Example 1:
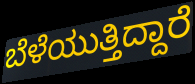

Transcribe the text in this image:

ಬೆಳೆಯುತ್ತಿದ್ದಾರೆ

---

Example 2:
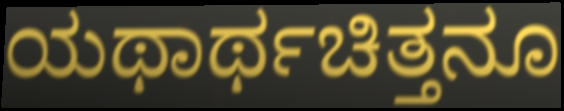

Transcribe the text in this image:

ಯಥಾರ್ಥಚಿತ್ತನೂ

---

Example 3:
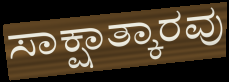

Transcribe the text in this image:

ಸಾಕ್ಷಾತ್ಕಾರವು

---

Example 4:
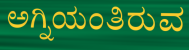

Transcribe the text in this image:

ಅಗ್ನಿಯಂತಿರುವ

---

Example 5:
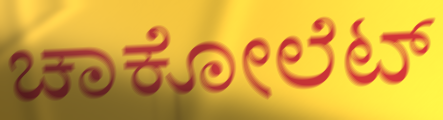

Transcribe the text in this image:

ಚಾಕೋಲೆಟ್